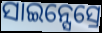
ସାଇନ୍ସେସ୍ରେ